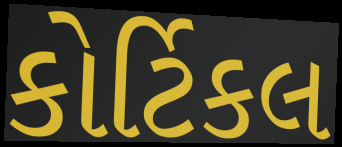
કોર્ટિકલ